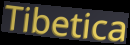
Tibetica